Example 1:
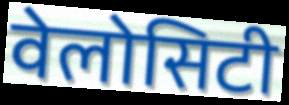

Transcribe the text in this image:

वेलोसिटी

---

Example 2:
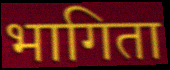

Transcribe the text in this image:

भागिता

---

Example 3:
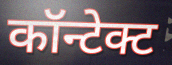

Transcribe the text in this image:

कॉन्टेक्ट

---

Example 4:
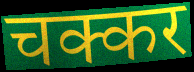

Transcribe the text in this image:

चक्कर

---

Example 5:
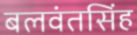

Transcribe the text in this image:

बलवंतसिंह